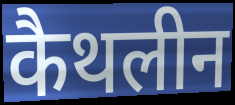
कैथलीन